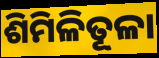
ଶିମିଳିତୂଳା